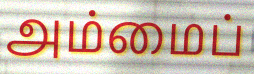
அம்மைப்